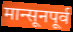
मान्सूनपूर्व